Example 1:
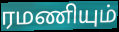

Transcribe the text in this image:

ரமணியும்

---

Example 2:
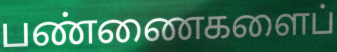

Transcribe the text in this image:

பண்ணைகளைப்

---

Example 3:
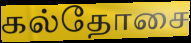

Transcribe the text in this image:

கல்தோசை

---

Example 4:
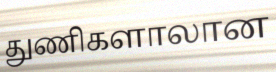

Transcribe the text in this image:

துணிகளாலான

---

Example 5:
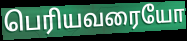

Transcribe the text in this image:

பெரியவரையோ